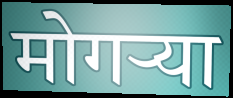
मोगऱ्या